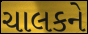
ચાલકને